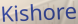
Kishore